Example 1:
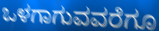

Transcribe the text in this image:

ಒಳಗಾಗುವವರೆಗೂ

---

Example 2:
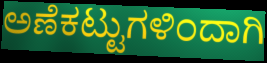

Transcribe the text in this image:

ಅಣೆಕಟ್ಟುಗಳಿಂದಾಗಿ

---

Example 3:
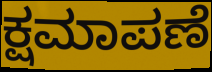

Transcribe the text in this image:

ಕ್ಷಮಾಪಣೆ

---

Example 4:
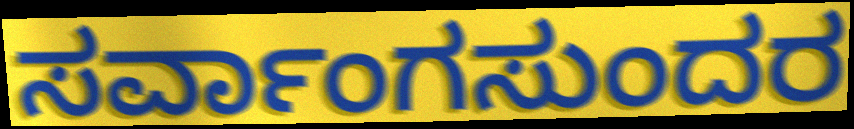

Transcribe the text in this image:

ಸರ್ವಾಂಗಸುಂದರ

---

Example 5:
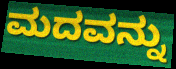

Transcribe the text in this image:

ಮದವನ್ನು